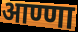
आण्णा